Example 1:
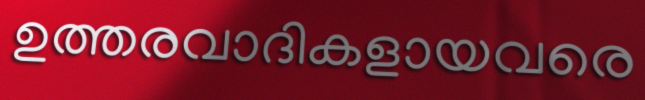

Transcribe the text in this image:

ഉത്തരവാദികളായവരെ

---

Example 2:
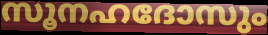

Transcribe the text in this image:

സൂനഹദോസും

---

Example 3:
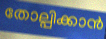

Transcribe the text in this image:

തോല്പിക്കാൻ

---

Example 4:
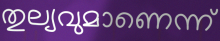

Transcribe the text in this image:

തുല്യവുമാണെന്ന്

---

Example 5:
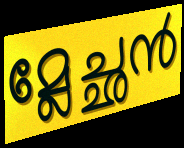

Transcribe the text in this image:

മ്ലേച്ഛൻ